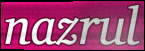
nazrul